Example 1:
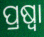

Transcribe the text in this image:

ପ୍ରଷ୍ୱା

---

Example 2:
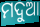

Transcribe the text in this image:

ମଦୁଆ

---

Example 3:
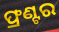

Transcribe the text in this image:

ଫ୍ରଣ୍ଟର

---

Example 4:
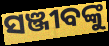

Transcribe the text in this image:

ସଞ୍ଜୀବଙ୍କୁ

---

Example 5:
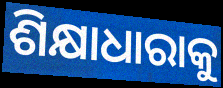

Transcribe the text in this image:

ଶିକ୍ଷାଧାରାକୁ